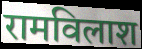
रामविलाश